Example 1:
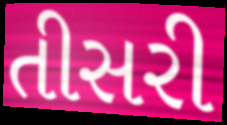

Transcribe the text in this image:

તીસરી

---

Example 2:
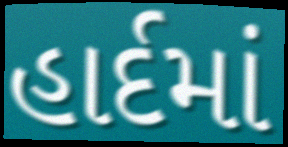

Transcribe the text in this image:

હાર્દમાં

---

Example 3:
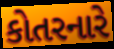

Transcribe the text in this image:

કોતરનારે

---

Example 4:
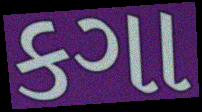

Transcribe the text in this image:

કગા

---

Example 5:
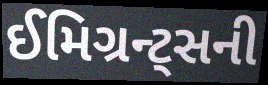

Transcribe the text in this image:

ઈમિગ્રન્ટ્સની